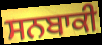
ਸਨਬਾਕੀ